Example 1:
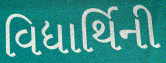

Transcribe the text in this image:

વિદ્યાર્થિની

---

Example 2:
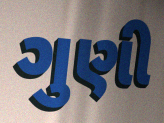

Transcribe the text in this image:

ગુણી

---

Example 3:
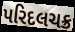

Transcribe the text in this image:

પરિદલચક્ર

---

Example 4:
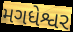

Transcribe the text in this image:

મગધેશ્વર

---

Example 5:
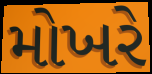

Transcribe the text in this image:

મોખરે